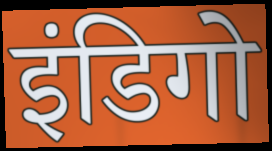
इंडिगो